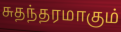
சுதந்தரமாகும்